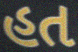
હત